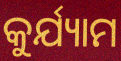
କୁର୍ଯ୍ୟାମ